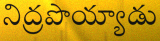
నిద్రపొయ్యాడు